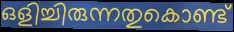
ഒളിച്ചിരുന്നതുകൊണ്ട്